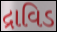
દ્રાવિડ